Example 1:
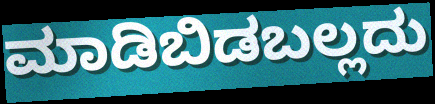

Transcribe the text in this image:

ಮಾಡಿಬಿಡಬಲ್ಲದು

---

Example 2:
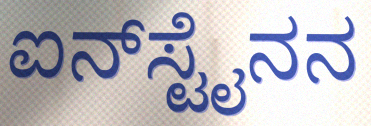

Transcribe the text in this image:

ಐನ್‌ಸ್ಟೈನನ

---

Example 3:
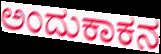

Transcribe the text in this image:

ಅಂದುಕಾಕನ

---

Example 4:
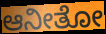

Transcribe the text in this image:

ಆನೀತೋ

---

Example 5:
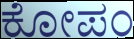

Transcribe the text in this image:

ಕೋಪಂ